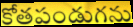
కోతపండుగను